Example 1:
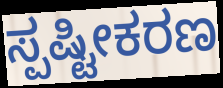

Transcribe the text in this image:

ಸ್ಪಷ್ಟೀಕರಣ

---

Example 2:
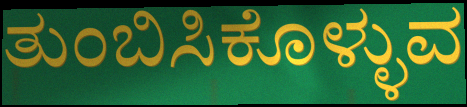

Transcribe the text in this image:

ತುಂಬಿಸಿಕೊಳ್ಳುವ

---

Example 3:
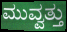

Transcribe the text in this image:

ಮುವ್ವತ್ತು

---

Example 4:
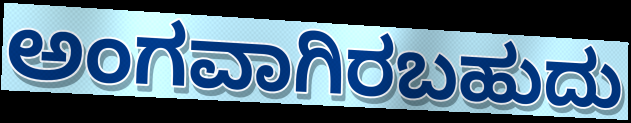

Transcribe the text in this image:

ಅಂಗವಾಗಿರಬಹುದು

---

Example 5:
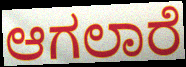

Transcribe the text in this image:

ಆಗಲಾರೆ